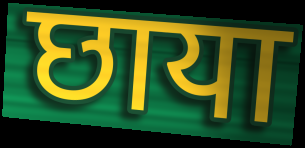
छाया